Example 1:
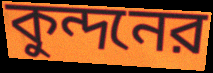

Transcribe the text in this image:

কুন্দনের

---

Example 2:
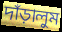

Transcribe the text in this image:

দাঁড়ালুম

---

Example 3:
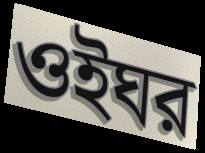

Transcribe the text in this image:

ওইঘর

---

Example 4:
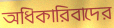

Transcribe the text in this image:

অধিকারিবাদের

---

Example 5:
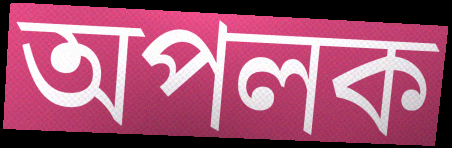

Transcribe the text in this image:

অপলক